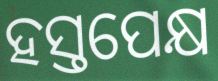
ହସ୍ତପେକ୍ଷ